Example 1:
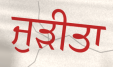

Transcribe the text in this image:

ਜੁੜੀਤਾ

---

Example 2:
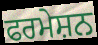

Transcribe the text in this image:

ਫਰਮੇਸ਼ਨ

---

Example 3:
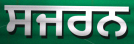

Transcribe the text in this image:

ਸਜਰਨ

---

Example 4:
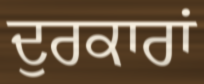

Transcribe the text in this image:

ਦੁਰਕਾਰਾਂ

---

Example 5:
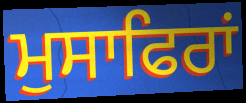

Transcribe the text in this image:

ਮੁਸਾਫਿਰਾਂ